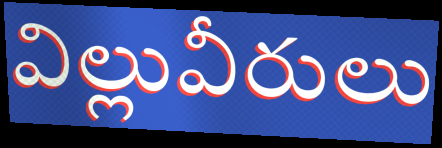
విల్లువీరులు